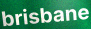
brisbane